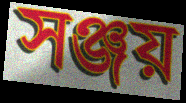
সঞ্জয়